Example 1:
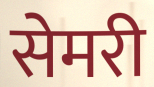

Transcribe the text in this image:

सेमरी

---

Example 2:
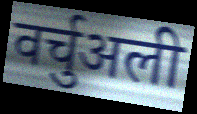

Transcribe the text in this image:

वर्चुअली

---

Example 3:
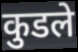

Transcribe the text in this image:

कुडले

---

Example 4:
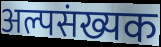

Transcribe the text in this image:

अल्पसंख्यक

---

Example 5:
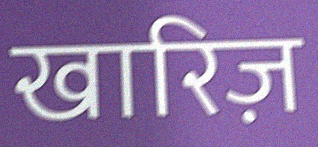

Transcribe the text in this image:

खारिज़